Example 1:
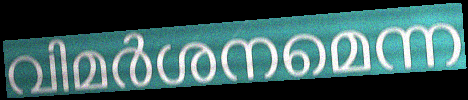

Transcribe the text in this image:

വിമർശനമെന്ന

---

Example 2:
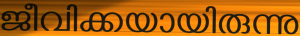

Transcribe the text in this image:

ജീവിക്കയായിരുന്നു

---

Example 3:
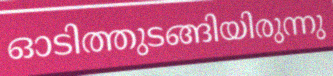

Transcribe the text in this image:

ഓടിത്തുടങ്ങിയിരുന്നു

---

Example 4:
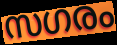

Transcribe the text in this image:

സഗരം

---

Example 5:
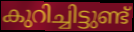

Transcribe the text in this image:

കുറിച്ചിട്ടുണ്ട്